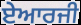
ਏਆਰਜੀ